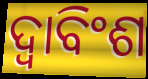
ଦ୍ୱାବିଂଶ